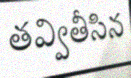
తవ్వితీసిన